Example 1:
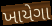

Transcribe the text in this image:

ખાયેગા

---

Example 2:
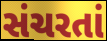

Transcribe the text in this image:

સંચરતાં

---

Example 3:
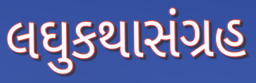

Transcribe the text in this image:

લઘુકથાસંગ્રહ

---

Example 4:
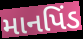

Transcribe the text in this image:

માનપિંડ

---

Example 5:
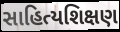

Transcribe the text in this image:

સાહિત્યશિક્ષણ